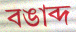
বঙাব্দ